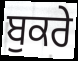
ਬੁਕਰੇ